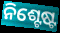
ନିଶ୍ଟେଷ୍ଟ